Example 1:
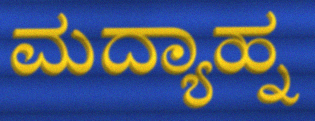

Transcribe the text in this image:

ಮದ್ಯಾಹ್ನ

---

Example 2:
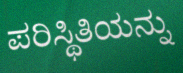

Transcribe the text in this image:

ಪರಿಸ್ಥಿತಿಯನ್ನು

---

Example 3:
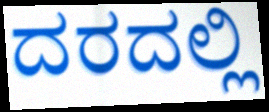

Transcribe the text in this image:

ದರದಲ್ಲಿ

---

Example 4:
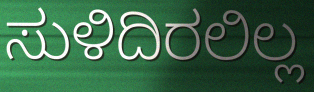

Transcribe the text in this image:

ಸುಳಿದಿರಲಿಲ್ಲ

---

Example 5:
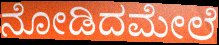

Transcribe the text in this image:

ನೋಡಿದಮೇಲೆ